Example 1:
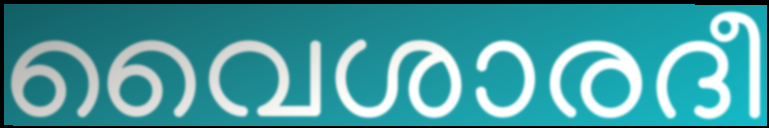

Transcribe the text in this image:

വൈശാരദീ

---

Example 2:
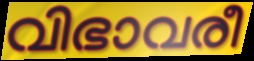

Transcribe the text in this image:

വിഭാവരീ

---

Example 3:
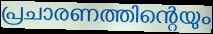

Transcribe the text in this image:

പ്രചാരണത്തിന്റെയും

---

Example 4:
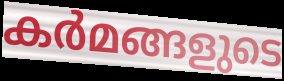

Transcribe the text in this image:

കർമങ്ങളുടെ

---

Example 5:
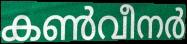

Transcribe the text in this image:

കൺവീനർ